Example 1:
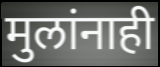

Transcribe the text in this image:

मुलांनाही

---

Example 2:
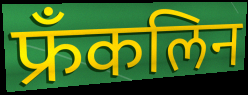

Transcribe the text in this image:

फ्रँकलिन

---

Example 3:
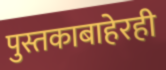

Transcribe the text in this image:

पुस्तकाबाहेरही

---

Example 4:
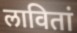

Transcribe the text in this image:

लावितां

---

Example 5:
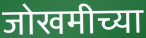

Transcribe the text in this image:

जोखमीच्या